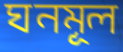
ঘনমূল